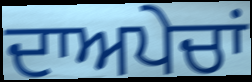
ਦਾਅਪੇਚਾਂ